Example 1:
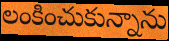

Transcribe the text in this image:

లంకించుకున్నాను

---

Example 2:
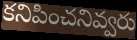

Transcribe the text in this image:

కనిపించనివ్వరు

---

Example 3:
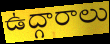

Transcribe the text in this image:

ఉద్గారాలు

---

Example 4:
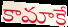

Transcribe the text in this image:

కామాకే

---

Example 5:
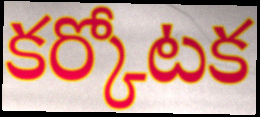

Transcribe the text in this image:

కర్కోటక